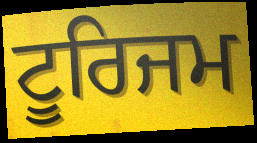
ਟੂਰਿਜਮ